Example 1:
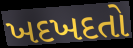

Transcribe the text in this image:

ખદખદતો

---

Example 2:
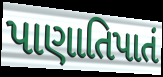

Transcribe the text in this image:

પાણાતિપાતં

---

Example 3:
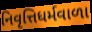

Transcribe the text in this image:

નિવૃત્તિધર્મવાળા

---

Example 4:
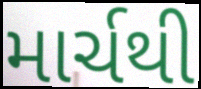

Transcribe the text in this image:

માર્ચથી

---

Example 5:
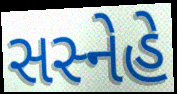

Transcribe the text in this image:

સસ્નેહે